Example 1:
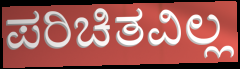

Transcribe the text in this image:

ಪರಿಚಿತವಿಲ್ಲ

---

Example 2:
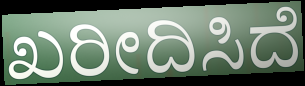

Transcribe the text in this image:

ಖರೀದಿಸಿದೆ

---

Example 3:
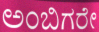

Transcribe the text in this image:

ಅಂಬಿಗರೇ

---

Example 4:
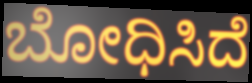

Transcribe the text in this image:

ಬೋಧಿಸಿದೆ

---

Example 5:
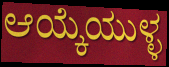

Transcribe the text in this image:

ಆಯ್ಕೆಯುಳ್ಳ